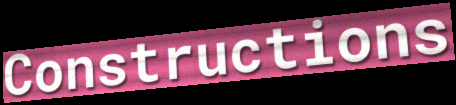
Constructions